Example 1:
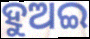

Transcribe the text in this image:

ହୁଅଇ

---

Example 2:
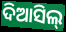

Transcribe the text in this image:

ଦିଆସିଲ୍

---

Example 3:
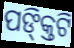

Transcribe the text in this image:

ପଙ୍କ୍ତିଟି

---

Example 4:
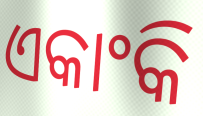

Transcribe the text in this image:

ଏକାଂକି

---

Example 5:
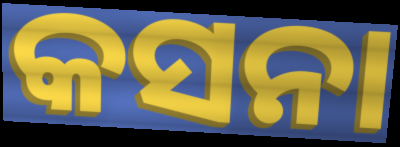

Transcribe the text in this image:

କସନା